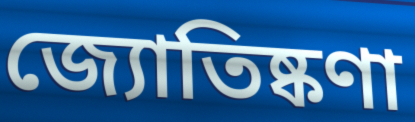
জ্যোতিষ্কণা